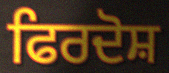
ਫਿਰਦੋਸ਼